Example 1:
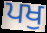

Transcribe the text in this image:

ਪਖੁ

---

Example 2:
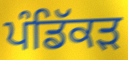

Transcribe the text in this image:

ਪੰਡਿੱਕੜ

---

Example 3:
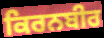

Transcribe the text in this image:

ਕਿਰਨਬੀਰ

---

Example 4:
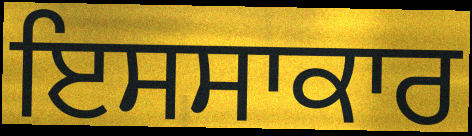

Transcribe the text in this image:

ਇਸਸਾਕਾਰ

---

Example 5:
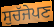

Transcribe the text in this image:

ਸੁਚੱਜੇਪਣ